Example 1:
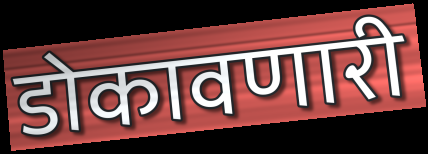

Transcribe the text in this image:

डोकावणारी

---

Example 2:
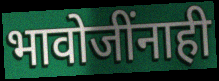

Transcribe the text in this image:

भावोजींनाही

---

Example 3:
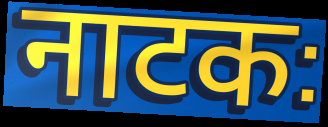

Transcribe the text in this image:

नाटकः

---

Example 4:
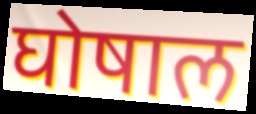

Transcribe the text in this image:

घोषाल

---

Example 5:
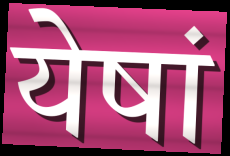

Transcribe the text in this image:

येषां